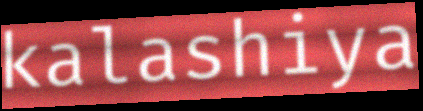
kalashiya